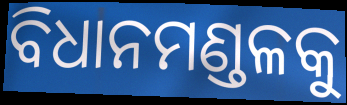
ବିଧାନମଣ୍ଡଳକୁ